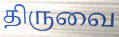
திருவை